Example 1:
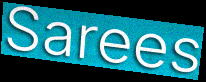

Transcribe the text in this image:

Sarees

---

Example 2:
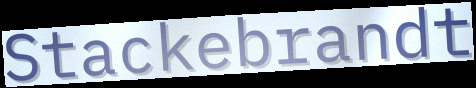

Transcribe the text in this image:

Stackebrandt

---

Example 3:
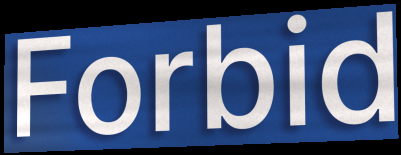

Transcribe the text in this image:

Forbid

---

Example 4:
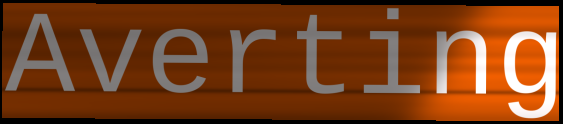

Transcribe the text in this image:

Averting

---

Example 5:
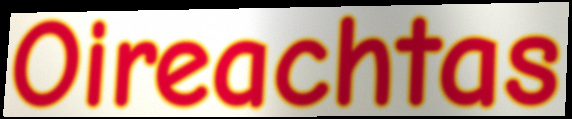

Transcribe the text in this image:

Oireachtas